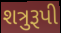
શત્રુરૂપી